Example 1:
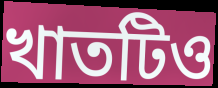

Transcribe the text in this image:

খাতটিও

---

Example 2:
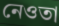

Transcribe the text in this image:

নেওতা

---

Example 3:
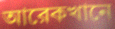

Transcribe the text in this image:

আরেকখানে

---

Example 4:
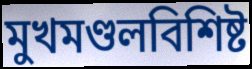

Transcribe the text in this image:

মুখমণ্ডলবিশিষ্ট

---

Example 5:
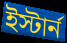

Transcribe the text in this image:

ইস্টার্ন